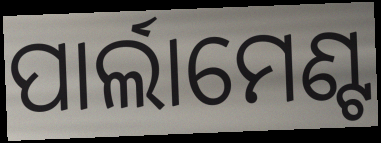
ପାର୍ଲାମେଣ୍ଟ